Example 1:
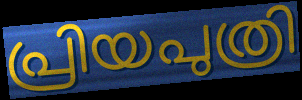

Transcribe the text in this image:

പ്രിയപുത്രി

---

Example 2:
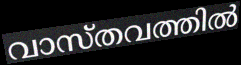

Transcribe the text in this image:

വാസ്തവത്തിൽ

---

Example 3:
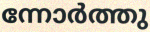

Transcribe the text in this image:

ന്നോർത്തു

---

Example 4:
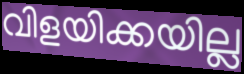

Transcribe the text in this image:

വിളയിക്കയില്ല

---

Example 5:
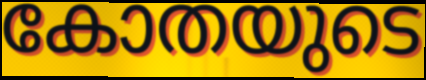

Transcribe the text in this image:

കോതയുടെ